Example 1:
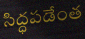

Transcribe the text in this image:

సిద్ధపడేంత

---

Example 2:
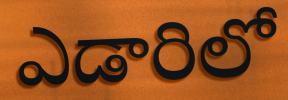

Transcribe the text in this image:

ఎడారిలో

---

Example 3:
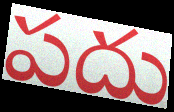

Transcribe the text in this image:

పదు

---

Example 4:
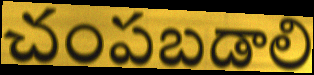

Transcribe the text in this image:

చంపబడాలి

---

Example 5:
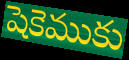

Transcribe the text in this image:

షెకెముకు